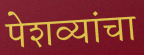
पेशव्यांचा